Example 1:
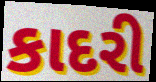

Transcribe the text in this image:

કાદરી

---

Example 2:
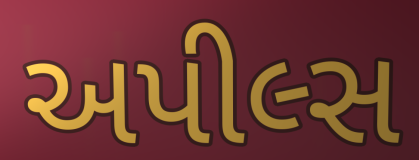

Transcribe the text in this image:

અપીલ્સ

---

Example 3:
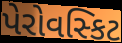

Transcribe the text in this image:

પેરોવસ્કિટ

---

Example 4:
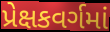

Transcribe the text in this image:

પ્રેક્ષકવર્ગમાં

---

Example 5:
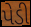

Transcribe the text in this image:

પેડી